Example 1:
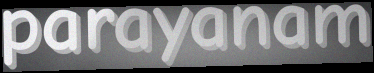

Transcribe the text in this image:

parayanam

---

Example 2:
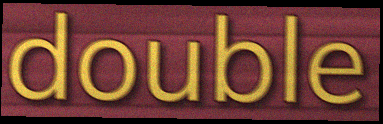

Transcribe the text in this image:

double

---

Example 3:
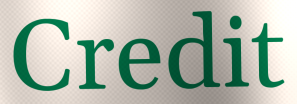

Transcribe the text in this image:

Credit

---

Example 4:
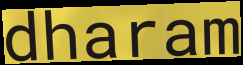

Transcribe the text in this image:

dharam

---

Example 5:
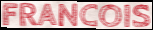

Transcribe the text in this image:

FRANCOIS